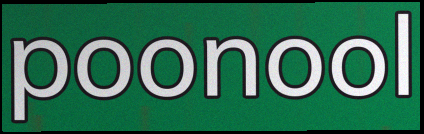
poonool